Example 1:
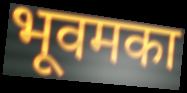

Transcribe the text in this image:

भूवमका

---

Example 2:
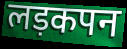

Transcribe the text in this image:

लड़कपन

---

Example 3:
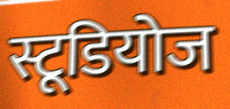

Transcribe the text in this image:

स्टूडियोज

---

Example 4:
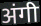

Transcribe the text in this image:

अंगी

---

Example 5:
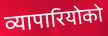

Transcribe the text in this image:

व्यापारियोको